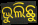
ଭୁଲିଛୁ